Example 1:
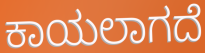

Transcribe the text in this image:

ಕಾಯಲಾಗದೆ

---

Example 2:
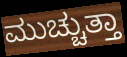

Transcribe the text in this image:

ಮುಚ್ಚುತ್ತಾ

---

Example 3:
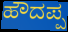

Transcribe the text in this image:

ಹೌದಪ್ಪ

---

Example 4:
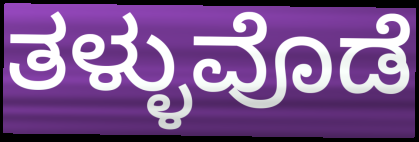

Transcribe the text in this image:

ತಳ್ಳುವೊಡೆ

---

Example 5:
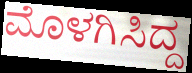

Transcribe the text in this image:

ಮೊಳಗಿಸಿದ್ದ